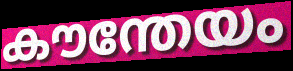
കൗന്തേയം